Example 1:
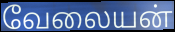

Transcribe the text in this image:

வேலையன்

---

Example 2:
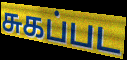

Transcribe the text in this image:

சுகப்பட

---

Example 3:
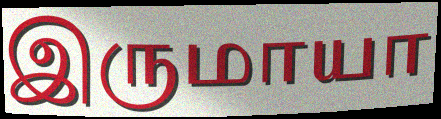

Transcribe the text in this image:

இருமாயா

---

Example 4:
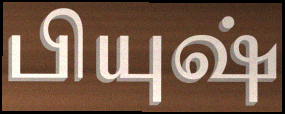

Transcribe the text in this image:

பியுஷ்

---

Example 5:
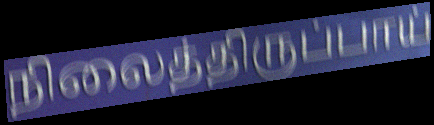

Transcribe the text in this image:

நிலைத்திருப்பாய்